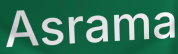
Asrama